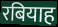
रबियाह